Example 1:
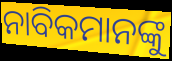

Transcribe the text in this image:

ନାବିକମାନଙ୍କୁ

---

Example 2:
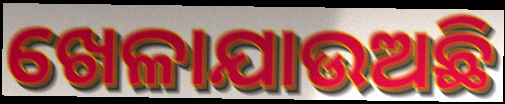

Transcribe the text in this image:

ଖେଳାଯାଉଅଛି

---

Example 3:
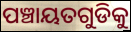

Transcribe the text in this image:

ପଞ୍ଚାୟତଗୁଡିକୁ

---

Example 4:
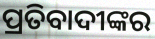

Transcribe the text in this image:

ପ୍ରତିବାଦୀଙ୍କର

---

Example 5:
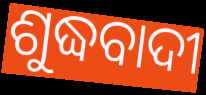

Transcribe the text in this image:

ଶୁଦ୍ଧବାଦୀ